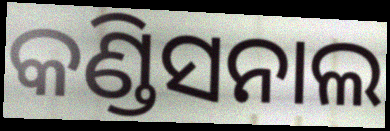
କଣ୍ଡିସନାଲ